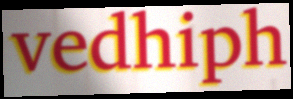
vedhiph